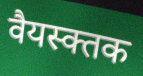
वैयस्क्तक